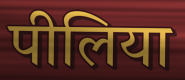
पीलिया